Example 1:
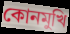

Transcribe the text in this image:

কোনমুখি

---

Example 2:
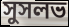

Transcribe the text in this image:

সুসলভ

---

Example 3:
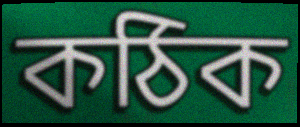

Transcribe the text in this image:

কঠিক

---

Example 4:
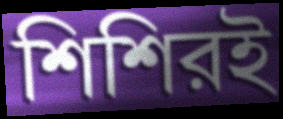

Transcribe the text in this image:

শিশিরই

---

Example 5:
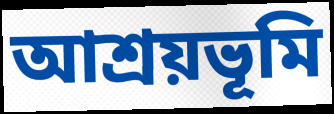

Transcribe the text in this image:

আশ্রয়ভূমি